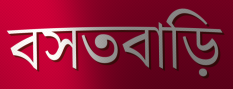
বসতবাড়ি